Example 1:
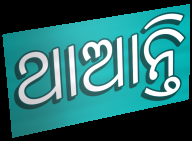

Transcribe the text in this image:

ଥାଆନ୍ତି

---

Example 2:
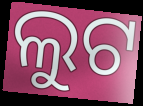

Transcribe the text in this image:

ଲୁଟ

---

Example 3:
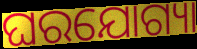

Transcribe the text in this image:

ଘରଯୋଗ୍ୟା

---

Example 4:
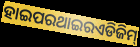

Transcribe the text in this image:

ହାଇପରଥାଇରଏଡିଜିମ୍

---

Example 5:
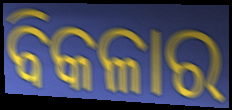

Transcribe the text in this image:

ବିକଳାର